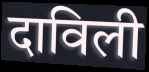
दाविली